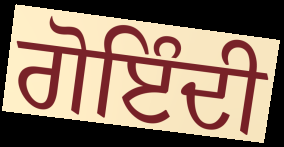
ਗੋਇੰਦੀ